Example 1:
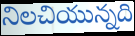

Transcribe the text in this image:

నిలచియున్నది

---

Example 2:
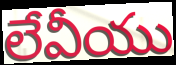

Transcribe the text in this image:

లేవీయు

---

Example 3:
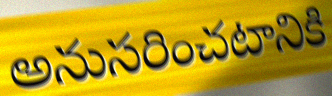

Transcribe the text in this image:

అనుసరించటానికి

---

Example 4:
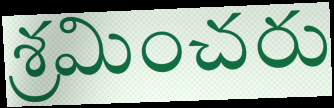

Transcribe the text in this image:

శ్రమించరు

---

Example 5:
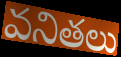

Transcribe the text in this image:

వనితలు